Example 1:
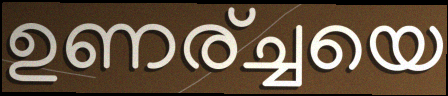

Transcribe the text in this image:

ഉണര്ച്ചയെ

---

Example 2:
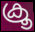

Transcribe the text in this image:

ക്രൂ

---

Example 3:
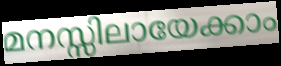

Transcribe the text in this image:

മനസ്സിലായേക്കാം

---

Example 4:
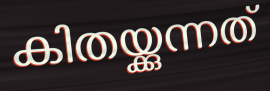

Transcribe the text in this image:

കിതയ്ക്കുന്നത്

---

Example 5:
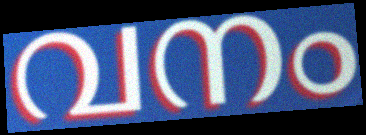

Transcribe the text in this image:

വനം